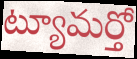
ట్యూమర్తో